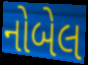
નોબેલ